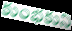
కుంభకుని